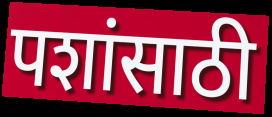
पशांसाठी